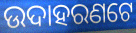
ଉଦାହରଣଟେ